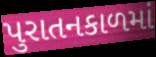
પુરાતનકાળમાં